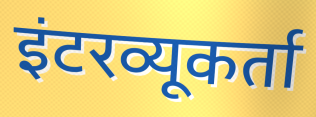
इंटरव्यूकर्ता